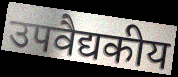
उपवैद्यकीय